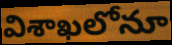
విశాఖలోనూ